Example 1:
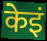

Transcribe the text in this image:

केइं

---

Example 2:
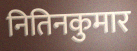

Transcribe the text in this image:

नितिनकुमार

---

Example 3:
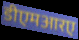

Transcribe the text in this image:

डीएमआरए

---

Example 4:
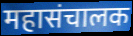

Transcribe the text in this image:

महासंचालक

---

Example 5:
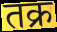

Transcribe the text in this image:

तक्र